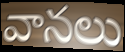
వానలు